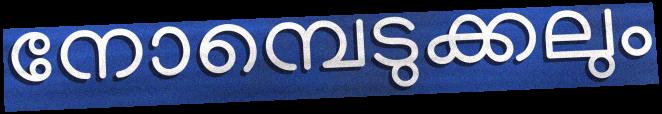
നോമ്പെടുക്കലും